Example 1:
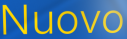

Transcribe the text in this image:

Nuovo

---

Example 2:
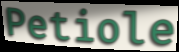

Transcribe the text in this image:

Petiole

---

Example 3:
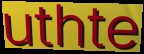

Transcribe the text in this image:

uthte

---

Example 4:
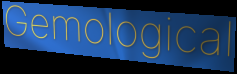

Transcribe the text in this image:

Gemological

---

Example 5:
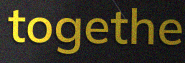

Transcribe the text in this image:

togethe